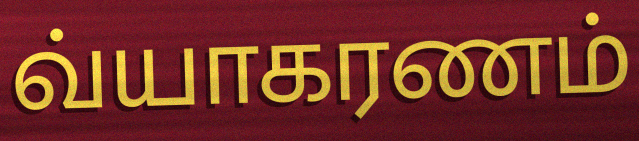
வ்யாகரணம்